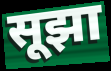
सूझा